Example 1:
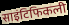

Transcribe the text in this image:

साइंटिफिकली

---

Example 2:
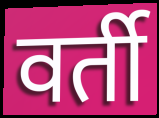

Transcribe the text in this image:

वर्ती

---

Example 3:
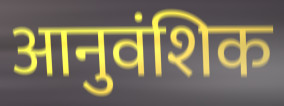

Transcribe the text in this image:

आनुवंशिक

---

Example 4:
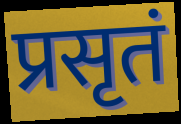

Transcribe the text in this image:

प्रसृतं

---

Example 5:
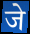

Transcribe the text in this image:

जे